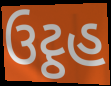
ઉટ્ઠહ